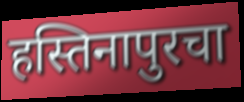
हस्तिनापुरचा